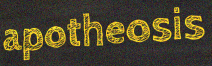
apotheosis